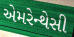
એમરેન્થેસી